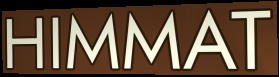
HIMMAT